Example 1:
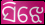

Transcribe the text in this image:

ସିଝେ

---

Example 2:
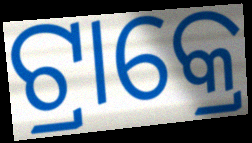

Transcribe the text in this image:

ଟ୍ରାକ୍ରେ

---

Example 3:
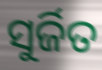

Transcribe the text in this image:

ସୁର୍ଜିତ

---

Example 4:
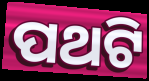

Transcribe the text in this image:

ପଥଟି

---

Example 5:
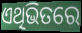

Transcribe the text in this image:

ଏଥିଭିତରେ